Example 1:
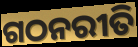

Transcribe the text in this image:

ଗଠନରୀତି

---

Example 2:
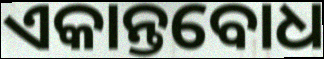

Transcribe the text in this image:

ଏକାନ୍ତବୋଧ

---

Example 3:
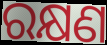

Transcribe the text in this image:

ରକ୍ଷଣ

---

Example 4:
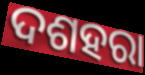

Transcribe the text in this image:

ଦଶହରା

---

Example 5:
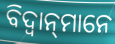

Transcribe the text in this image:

ବିଦ୍ୱାନ୍‌ମାନେ